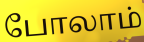
போலாம்